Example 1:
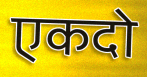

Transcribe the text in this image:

एकदो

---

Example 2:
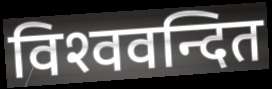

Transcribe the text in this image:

विश्ववन्दित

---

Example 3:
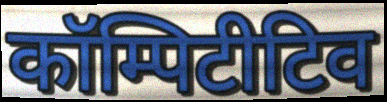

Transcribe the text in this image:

कॉम्पिटीटिव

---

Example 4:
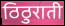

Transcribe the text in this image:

ठिठुराती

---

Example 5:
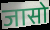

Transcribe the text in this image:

जासो